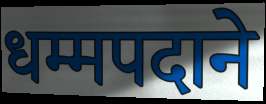
धम्मपदाने